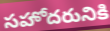
సహోదరునికి